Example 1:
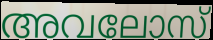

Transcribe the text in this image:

അവലോസ്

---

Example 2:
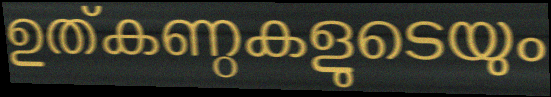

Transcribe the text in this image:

ഉത്കണ്ഠകളുടെയും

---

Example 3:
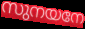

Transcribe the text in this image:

സുനയനേ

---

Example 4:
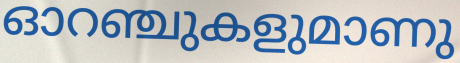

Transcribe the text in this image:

ഓറഞ്ചുകളുമാണു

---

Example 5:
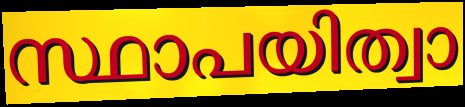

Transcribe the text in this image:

സ്ഥാപയിത്വാ